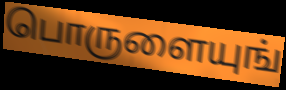
பொருளையுங்